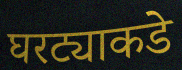
घरट्याकडे